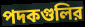
পদকগুলির